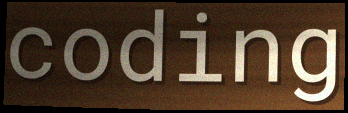
coding